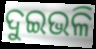
ଦୁଇଭଳି